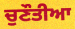
ਚੁਣੌਤੀਆ